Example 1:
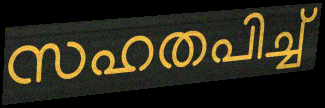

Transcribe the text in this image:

സഹതപിച്ച്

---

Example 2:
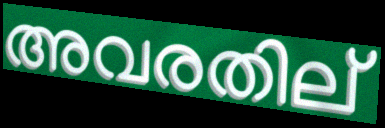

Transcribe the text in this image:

അവരതില്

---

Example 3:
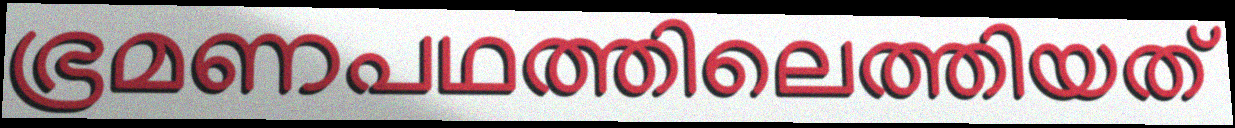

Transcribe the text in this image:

ഭ്രമണപഥത്തിലെത്തിയത്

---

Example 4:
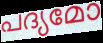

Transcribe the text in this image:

പദ്യമോ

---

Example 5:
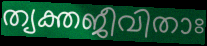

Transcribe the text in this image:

ത്യക്തജീവിതാഃ